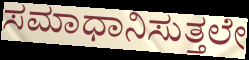
ಸಮಾಧಾನಿಸುತ್ತಲೇ